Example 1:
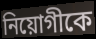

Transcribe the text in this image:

নিয়োগীকে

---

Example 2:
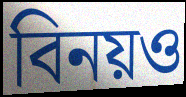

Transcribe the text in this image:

বিনয়ও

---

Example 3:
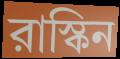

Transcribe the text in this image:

রাস্কিন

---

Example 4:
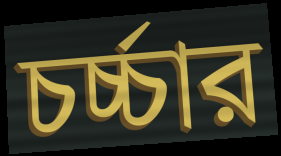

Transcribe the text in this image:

চর্চ্চার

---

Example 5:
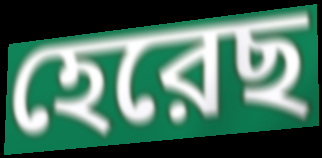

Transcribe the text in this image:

হেরেছ